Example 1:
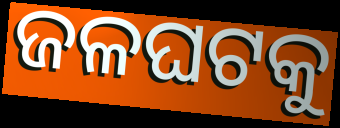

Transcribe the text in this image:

ଜଳଘଟକୁ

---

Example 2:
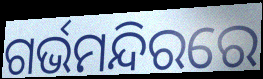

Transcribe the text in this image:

ଗର୍ଭମନ୍ଦିରରେ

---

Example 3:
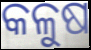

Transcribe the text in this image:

କଳୁଷ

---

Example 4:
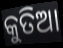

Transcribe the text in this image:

କୁତିଆ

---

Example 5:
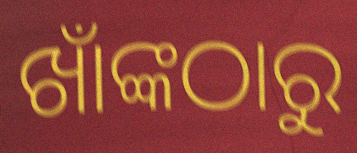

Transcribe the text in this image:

ଖାଁଙ୍କଠାରୁ